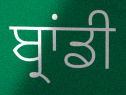
ਬ੍ਰਾਂਡੀ